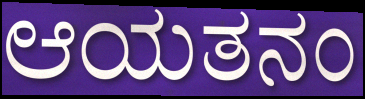
ಆಯತನಂ